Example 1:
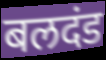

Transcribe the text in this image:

बलदंड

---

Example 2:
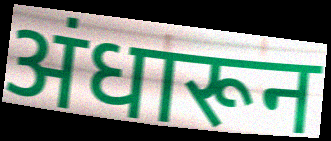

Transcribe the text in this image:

अंधारून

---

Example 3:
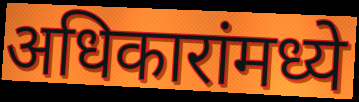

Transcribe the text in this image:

अधिकारांमध्ये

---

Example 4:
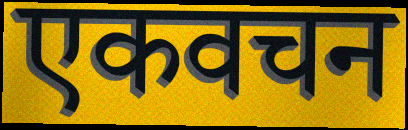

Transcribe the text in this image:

एकवचन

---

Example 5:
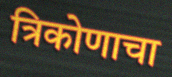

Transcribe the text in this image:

त्रिकोणाचा